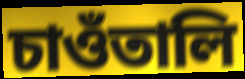
চাওঁতালি